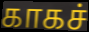
காகச்